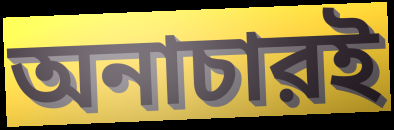
অনাচারই